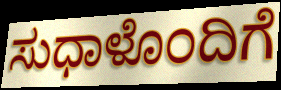
ಸುಧಾಳೊಂದಿಗೆ